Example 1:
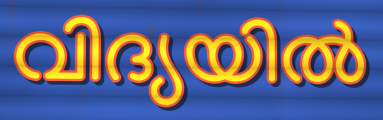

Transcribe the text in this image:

വിദ്യയിൽ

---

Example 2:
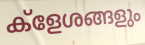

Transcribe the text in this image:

ക്ളേശങ്ങളും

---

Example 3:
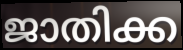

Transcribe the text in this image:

ജാതിക്ക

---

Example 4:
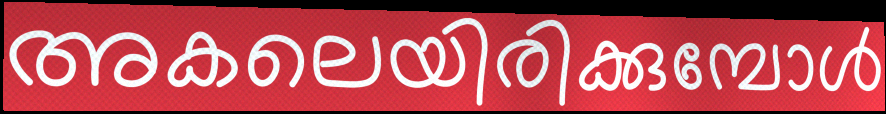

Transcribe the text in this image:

അകലെയിരിക്കുമ്പോൾ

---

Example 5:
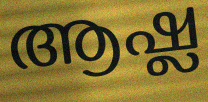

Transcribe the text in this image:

ആഷ്ല